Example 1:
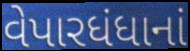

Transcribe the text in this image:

વેપારધંધાનાં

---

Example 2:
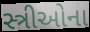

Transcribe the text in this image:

સ્ત્રીઓના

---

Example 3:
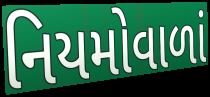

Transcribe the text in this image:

નિયમોવાળાં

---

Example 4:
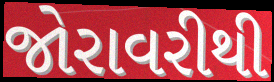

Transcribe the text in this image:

જોરાવરીથી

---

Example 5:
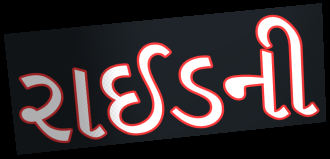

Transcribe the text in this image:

રાઈડની